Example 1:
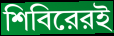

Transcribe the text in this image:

শিবিরেরই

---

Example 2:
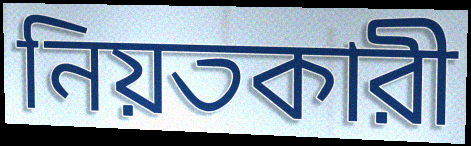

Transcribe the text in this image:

নিয়তকারী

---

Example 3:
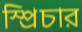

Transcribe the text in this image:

স্প্রিচার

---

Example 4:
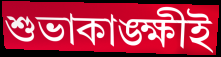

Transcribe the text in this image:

শুভাকাঙ্ক্ষীই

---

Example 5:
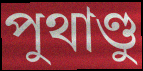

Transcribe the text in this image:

পুথাণ্ডু